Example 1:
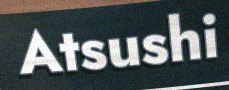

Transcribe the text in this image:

Atsushi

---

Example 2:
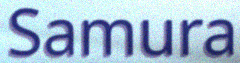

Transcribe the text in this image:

Samura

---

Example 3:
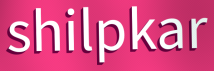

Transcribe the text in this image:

shilpkar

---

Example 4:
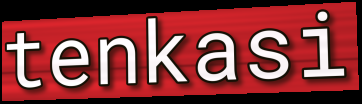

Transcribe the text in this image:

tenkasi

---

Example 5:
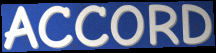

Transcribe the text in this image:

ACCORD